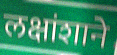
लक्षांशाने